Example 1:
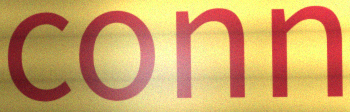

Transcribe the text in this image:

conn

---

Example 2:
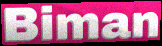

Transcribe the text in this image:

Biman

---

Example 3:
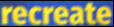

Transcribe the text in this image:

recreate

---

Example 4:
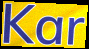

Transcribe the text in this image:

Kar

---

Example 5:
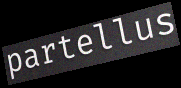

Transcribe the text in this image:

partellus